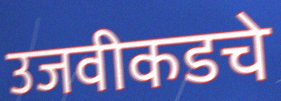
उजवीकडचे